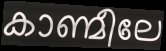
കാണ്മീലേ